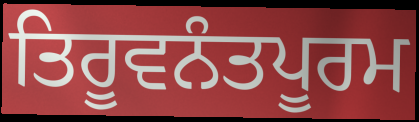
ਤਿਰੂਵਨੰਤਪੂਰਮ